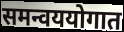
समन्वययोगात